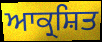
ਆਕ੍ਰਸ਼ਿਤ